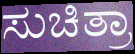
ಸುಚಿತ್ರಾ